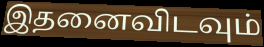
இதனைவிடவும்